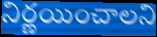
నిర్ణయించాలని